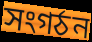
সংগঠন